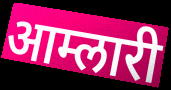
आम्लारी